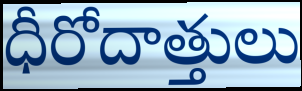
ధీరోదాత్తులు